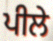
ਪੀਲੇ